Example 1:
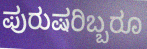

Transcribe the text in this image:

ಪುರುಷರಿಬ್ಬರೂ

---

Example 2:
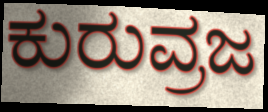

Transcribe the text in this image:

ಕುರುವ್ರಜ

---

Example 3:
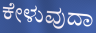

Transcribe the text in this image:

ಕೇಳುವುದಾ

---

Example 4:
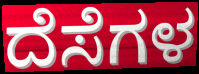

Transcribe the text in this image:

ದೆಸೆಗಳ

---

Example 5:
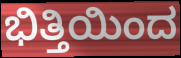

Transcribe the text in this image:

ಭಿತ್ತಿಯಿಂದ